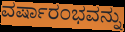
ವರ್ಷಾರಂಭವನ್ನು